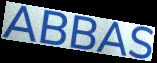
ABBAS